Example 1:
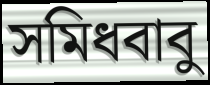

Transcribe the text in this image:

সমিধবাবু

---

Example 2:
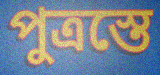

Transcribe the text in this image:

পুত্রস্তে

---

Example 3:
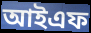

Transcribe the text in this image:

আইএফ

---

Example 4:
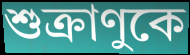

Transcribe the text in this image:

শুক্রাণুকে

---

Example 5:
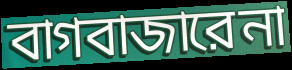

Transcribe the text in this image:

বাগবাজারেনা